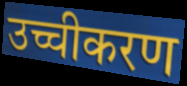
उच्चीकरण